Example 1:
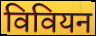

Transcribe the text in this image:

विवियन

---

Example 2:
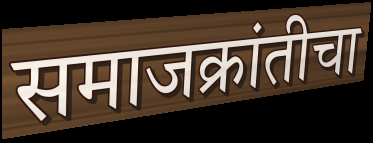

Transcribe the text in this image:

समाजक्रांतीचा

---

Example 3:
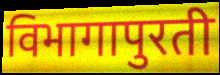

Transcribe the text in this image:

विभागापुरती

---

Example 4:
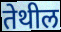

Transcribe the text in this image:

तेथील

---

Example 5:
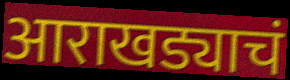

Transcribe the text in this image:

आराखड्याचं